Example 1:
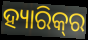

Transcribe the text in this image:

ହ୍ୟାରିକ୍‌ର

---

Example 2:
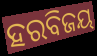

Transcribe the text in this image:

ହରବିଜୟ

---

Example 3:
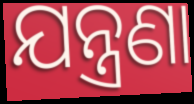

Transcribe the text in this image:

ଯନ୍ତ୍ରଣା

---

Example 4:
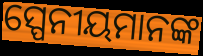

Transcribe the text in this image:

ସ୍ପେନୀୟମାନଙ୍କ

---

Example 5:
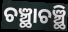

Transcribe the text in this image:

ଚଞ୍ଛାଚଞ୍ଛି